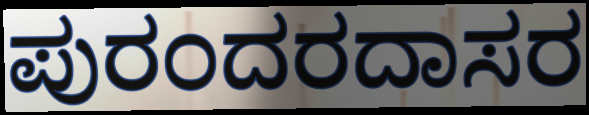
ಪುರಂದರದಾಸರ